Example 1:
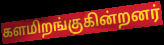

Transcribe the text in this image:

களமிறங்குகின்றனர்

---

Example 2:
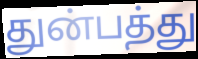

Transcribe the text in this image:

துன்பத்து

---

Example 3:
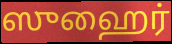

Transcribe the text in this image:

ஸுஹைர்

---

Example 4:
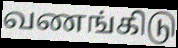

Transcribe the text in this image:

வணங்கிடு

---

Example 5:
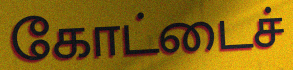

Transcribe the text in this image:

கோட்டைச்